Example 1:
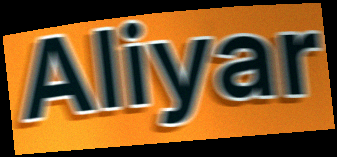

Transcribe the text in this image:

Aliyar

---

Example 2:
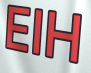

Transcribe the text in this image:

EIH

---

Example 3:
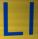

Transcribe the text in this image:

LI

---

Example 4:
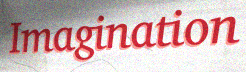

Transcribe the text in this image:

Imagination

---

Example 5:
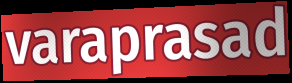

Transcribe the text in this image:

varaprasad